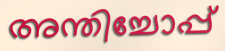
അന്തിച്ചോപ്പ്